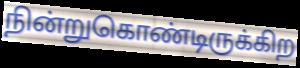
நின்றுகொண்டிருக்கிற